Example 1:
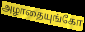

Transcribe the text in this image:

அழாதையுங்கோ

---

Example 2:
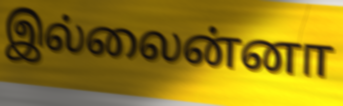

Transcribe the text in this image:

இல்லைன்னா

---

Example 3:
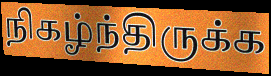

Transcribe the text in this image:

நிகழ்ந்திருக்க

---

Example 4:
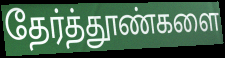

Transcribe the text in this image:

தேர்த்தூண்களை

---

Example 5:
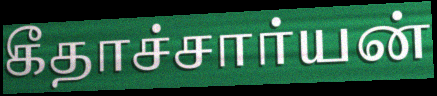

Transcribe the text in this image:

கீதாச்சார்யன்